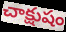
చాక్షుషం